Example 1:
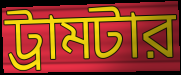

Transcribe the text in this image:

ট্রামটার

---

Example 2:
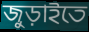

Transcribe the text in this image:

জুড়াইতে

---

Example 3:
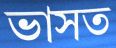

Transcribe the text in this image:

ভাসত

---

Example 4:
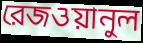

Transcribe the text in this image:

রেজওয়ানুল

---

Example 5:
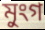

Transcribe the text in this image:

মুংগ